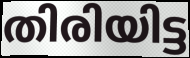
തിരിയിട്ട